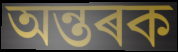
অন্তৰক